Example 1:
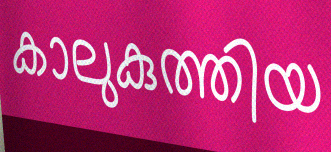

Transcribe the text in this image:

കാലുകുത്തിയ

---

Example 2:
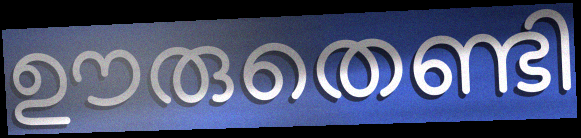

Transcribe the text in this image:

ഊരുതെണ്ടി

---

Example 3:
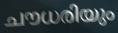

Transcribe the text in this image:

ചൗധരിയും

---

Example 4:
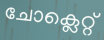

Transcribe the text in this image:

ചോക്ലെറ്റ്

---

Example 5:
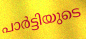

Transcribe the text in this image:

പാർട്ടിയുടെ